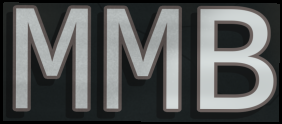
MMB